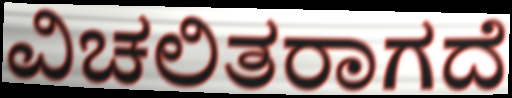
ವಿಚಲಿತರಾಗದೆ